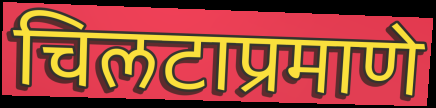
चिलटाप्रमाणे